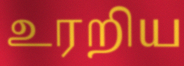
உரறிய